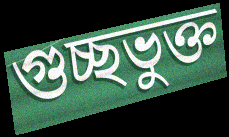
গুচ্ছভুক্ত